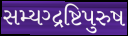
સમ્યગ્દ્રષ્ટિપુરુષ